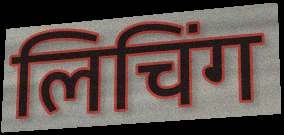
लिचिंग